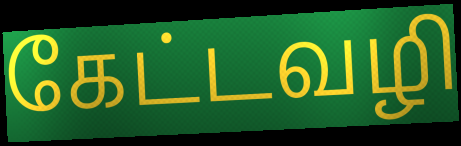
கேட்டவழி